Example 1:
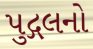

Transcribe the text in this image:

પુદ્ગલનો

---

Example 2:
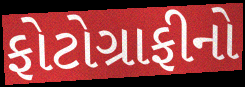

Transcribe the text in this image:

ફોટોગ્રાફીનો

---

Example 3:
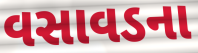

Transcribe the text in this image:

વસાવડના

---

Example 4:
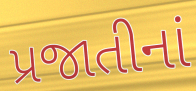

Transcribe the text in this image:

પ્રજાતીનાં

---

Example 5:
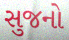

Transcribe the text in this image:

સુજનો